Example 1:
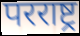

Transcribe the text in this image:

परराष्ट्र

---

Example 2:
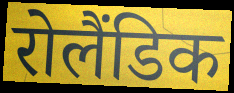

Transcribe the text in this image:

रोलैंडिक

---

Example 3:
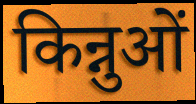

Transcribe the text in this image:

किन्नुओं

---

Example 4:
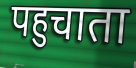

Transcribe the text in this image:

पहुचाता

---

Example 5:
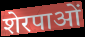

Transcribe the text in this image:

शेरपाओं